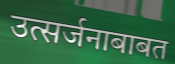
उत्सर्जनाबाबत